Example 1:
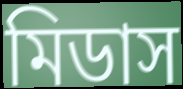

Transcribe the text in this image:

মিডাস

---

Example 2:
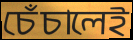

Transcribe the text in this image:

চেঁচালেই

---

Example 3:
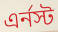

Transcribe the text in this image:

এর্নস্ট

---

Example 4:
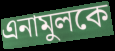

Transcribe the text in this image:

এনামুলকে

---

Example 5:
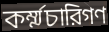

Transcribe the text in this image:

কর্ম্মচারিগণ